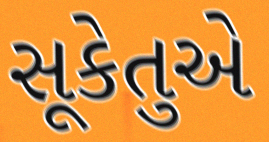
સૂકેતુએ